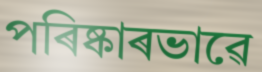
পৰিষ্কাৰভাৱে